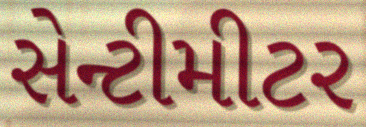
સેન્ટીમીટર